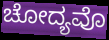
ಚೋದ್ಯವೊ